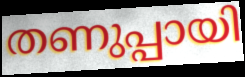
തണുപ്പായി